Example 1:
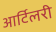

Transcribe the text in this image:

आर्टिलरी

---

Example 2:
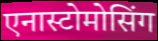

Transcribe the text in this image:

एनास्टोमोसिंग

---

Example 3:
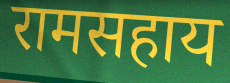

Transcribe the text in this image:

रामसहाय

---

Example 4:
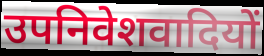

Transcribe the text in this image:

उपनिवेशवादियों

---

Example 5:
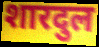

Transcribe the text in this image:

शारदुल